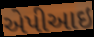
એપીઆઇ